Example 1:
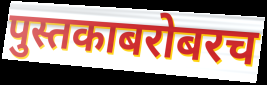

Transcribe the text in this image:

पुस्तकाबरोबरच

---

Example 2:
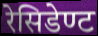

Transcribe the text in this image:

रेसिडेण्ट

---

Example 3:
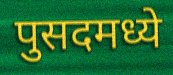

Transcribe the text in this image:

पुसदमध्ये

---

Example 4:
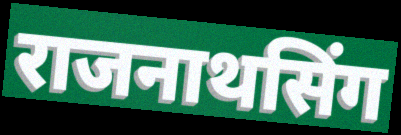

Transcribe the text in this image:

राजनाथसिंग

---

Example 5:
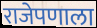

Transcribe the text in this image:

राजेपणाला